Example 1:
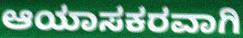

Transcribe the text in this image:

ಆಯಾಸಕರವಾಗಿ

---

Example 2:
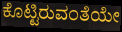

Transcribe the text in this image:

ಕೊಟ್ಟಿರುವಂತೆಯೇ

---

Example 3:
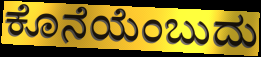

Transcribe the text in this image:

ಕೊನೆಯೆಂಬುದು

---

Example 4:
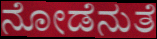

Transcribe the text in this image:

ನೋಡೆನುತೆ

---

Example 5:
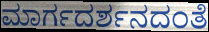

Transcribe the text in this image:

ಮಾರ್ಗದರ್ಶನದಂತೆ